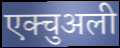
एक्चुअली